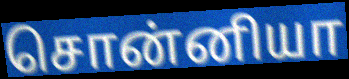
சொன்னியா